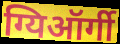
ग्यिऑर्गी